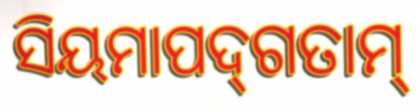
ସିୟମାପଦ୍‌ଗତାମ୍